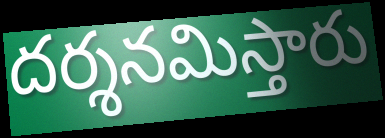
దర్శనమిస్తారు